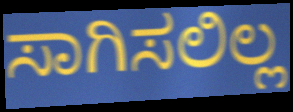
ಸಾಗಿಸಲಿಲ್ಲ